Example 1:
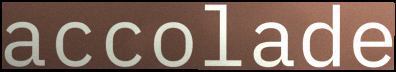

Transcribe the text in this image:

accolade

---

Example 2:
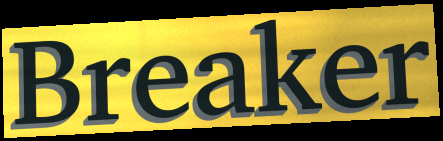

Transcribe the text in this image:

Breaker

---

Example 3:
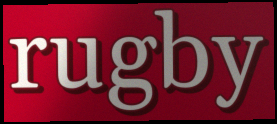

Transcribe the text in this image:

rugby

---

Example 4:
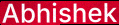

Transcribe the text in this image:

Abhishek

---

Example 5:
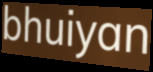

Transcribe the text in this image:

bhuiyan